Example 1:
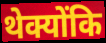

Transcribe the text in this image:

थेक्योंकि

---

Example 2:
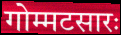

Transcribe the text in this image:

गोम्मटसारः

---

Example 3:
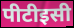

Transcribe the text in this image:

पीटीइसी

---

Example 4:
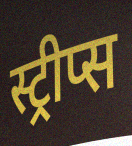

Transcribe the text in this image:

स्ट्रीप्स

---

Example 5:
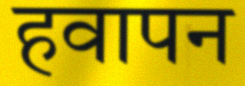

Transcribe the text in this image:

हवापन